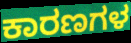
ಕಾರಣಗಳ